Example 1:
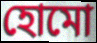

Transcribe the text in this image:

হোমো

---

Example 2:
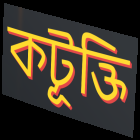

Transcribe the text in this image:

কটূক্তি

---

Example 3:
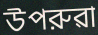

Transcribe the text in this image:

উপৰুৱা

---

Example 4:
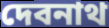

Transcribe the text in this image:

দেবনাথ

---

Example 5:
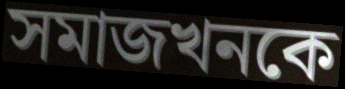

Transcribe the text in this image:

সমাজখনকে